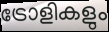
ട്രോളികളും